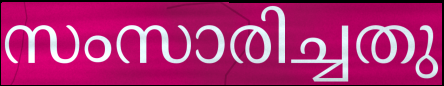
സംസാരിച്ചതു